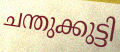
ചന്തുക്കുട്ടി